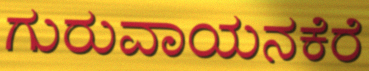
ಗುರುವಾಯನಕೆರೆ